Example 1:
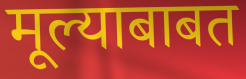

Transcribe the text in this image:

मूल्याबाबत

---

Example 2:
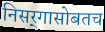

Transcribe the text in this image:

निसर्गासोबतच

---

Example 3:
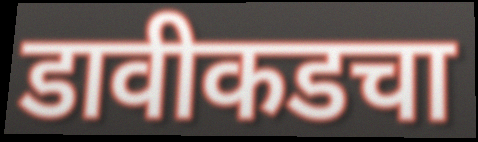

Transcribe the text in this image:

डावीकडचा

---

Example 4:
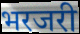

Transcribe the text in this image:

भरजरी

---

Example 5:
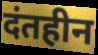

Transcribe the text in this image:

दंतहीन